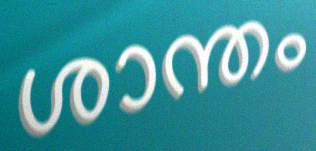
ശാന്തം